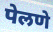
पेलणे